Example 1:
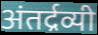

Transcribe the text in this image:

अंतर्द्रव्यी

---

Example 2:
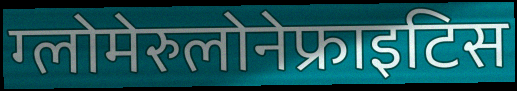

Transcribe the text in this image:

ग्लोमेरुलोनेफ्राइटिस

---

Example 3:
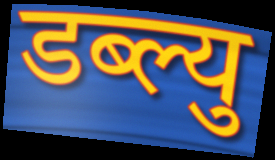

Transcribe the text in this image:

डब्ल्यु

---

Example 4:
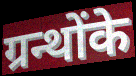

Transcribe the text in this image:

ग्रन्थोंके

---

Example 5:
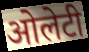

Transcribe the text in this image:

ओलेटी